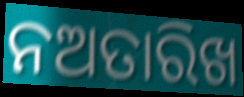
ନଅତାରିଖ